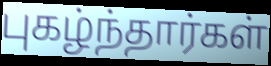
புகழ்ந்தார்கள்